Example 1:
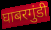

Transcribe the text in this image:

घाबरगुंडी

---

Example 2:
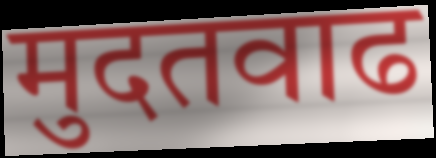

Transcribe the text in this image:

मुदतवाढ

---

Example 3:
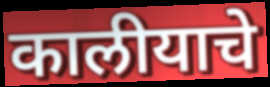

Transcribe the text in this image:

कालीयाचे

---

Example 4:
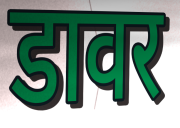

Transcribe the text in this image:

डावर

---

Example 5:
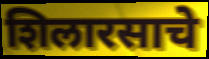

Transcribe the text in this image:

शिलारसाचे